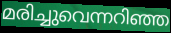
മരിച്ചുവെന്നറിഞ്ഞ